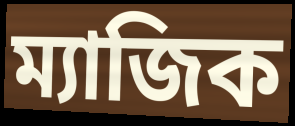
ম্যাজিক